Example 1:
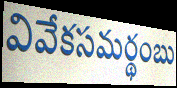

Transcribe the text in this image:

వివేకసమర్థంబు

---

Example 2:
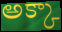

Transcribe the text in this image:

అక్కా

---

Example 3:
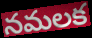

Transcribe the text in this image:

నమలక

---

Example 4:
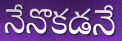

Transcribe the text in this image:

నేనొకడనే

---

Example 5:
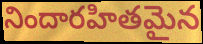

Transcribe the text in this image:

నిందారహితమైన